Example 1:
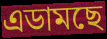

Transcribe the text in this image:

এডামছে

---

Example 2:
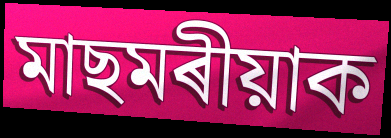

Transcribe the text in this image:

মাছমৰীয়াক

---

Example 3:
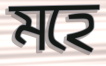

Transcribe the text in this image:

মহে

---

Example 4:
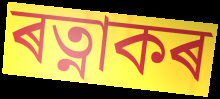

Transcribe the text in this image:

ৰত্নাকৰ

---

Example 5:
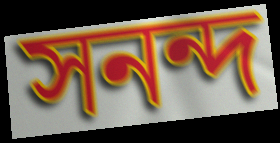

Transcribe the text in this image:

সনন্দ